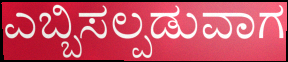
ಎಬ್ಬಿಸಲ್ಪಡುವಾಗ